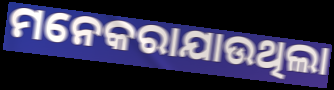
ମନେକରାଯାଉଥିଲା